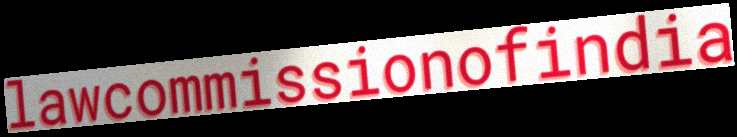
lawcommissionofindia